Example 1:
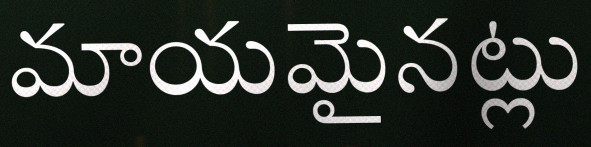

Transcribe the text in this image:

మాయమైనట్లు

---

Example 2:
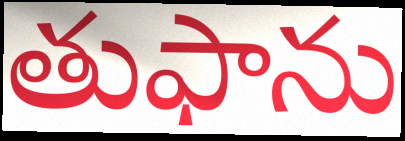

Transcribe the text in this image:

తుఫాను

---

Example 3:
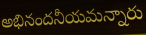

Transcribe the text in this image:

అభినందనీయమన్నారు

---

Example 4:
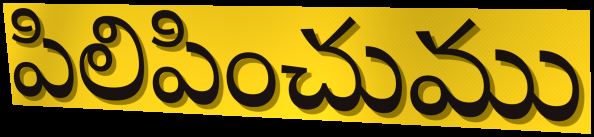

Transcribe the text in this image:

పిలిపించుము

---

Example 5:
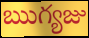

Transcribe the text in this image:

ఋగ్యజు